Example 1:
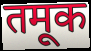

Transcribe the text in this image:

तमूक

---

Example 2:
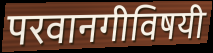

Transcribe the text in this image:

परवानगीविषयी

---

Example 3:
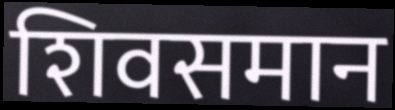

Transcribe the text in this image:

शिवसमान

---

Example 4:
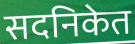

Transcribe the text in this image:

सदनिकेत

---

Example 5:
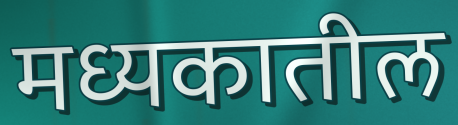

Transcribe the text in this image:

मध्यकातील